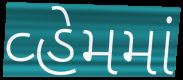
વ્હેમમાં